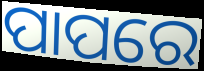
ପାପରେ